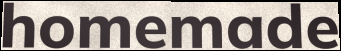
homemade